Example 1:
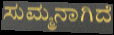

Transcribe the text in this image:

ಸುಮ್ಮನಾಗಿದೆ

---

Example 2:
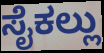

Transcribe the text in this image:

ಸೈಕಲ್ಲು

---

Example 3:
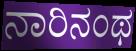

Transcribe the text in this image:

ನಾರಿನಂಥ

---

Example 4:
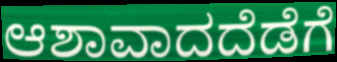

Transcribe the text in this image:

ಆಶಾವಾದದೆಡೆಗೆ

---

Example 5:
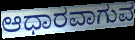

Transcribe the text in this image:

ಆಧಾರವಾಗುವ